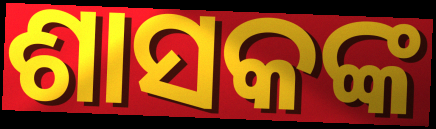
ଶାସକଙ୍କ